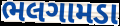
ભલગામડા